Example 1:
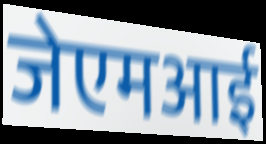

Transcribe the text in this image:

जेएमआई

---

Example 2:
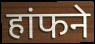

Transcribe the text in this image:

हांफने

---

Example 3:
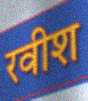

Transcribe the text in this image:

रवीश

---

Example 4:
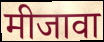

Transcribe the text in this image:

मीजावा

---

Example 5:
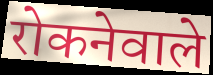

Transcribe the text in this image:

रोकनेवाले